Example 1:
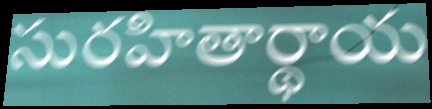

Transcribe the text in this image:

సురహితార్థాయ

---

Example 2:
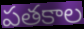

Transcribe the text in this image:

పతకాల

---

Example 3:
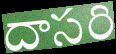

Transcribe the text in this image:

దాసరి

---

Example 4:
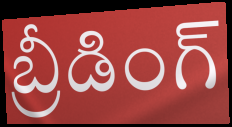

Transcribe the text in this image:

బ్రీడింగ్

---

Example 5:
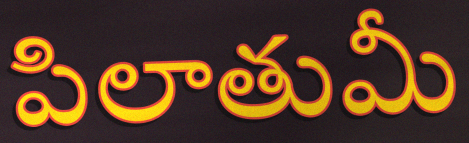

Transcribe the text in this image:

పిలాతుమీ